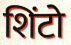
शिंटो